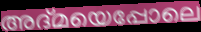
അദ്മയെപ്പോലെ